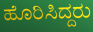
ಹೊರಿಸಿದ್ದರು